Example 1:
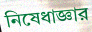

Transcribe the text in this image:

নিষেধাজ্ঞার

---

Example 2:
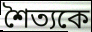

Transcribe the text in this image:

শৈত্যকে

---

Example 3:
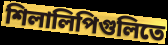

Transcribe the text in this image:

শিলালিপিগুলিতে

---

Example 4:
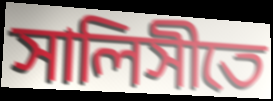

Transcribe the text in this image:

সালিসীতে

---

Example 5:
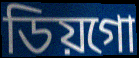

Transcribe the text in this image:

ডিয়গো